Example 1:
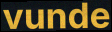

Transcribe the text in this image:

vunde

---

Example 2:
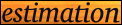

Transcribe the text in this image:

estimation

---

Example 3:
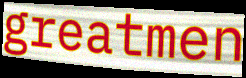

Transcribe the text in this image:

greatmen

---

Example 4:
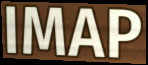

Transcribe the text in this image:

IMAP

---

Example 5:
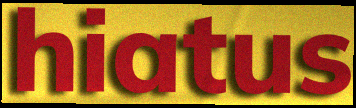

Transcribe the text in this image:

hiatus